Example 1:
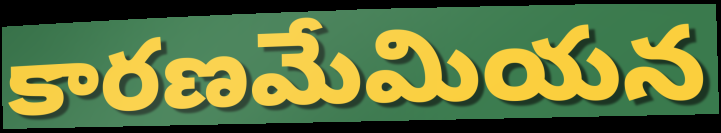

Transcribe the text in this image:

కారణమేమియన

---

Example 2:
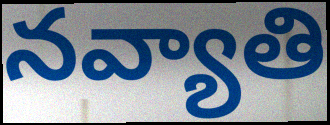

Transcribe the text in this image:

నవ్యాతి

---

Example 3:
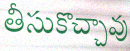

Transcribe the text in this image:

తీసుకొచ్చావు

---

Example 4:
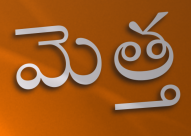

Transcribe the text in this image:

మెత్త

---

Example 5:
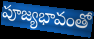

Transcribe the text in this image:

పూజ్యభావంతో